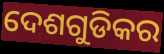
ଦେଶଗୁଡିକର